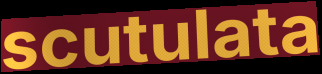
scutulata